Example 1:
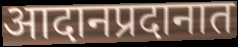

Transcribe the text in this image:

आदानप्रदानात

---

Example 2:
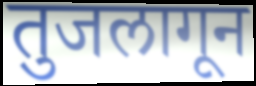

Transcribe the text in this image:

तुजलागून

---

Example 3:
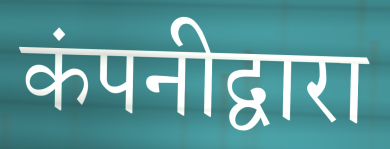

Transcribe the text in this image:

कंपनीद्वारा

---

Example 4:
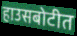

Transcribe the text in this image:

हाउसबोटीत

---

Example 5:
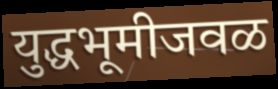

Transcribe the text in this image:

युद्धभूमीजवळ